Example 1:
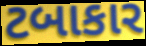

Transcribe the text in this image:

ટબાકાર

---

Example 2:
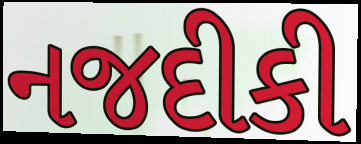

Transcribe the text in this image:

નજદીકી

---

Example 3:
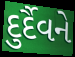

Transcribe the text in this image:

દુર્દૈવને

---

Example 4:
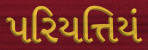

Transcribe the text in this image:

પરિયત્તિયં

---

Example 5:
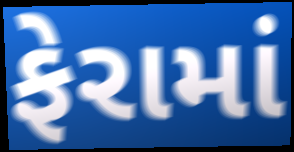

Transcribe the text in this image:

ફેરામાં